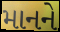
માનને